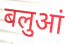
बलुआं